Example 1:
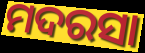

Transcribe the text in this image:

ମଦରସା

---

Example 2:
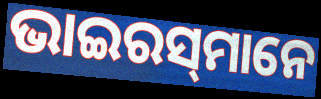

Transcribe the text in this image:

ଭାଇରସ୍‌ମାନେ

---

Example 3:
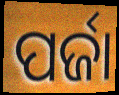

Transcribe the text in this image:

ପର୍ଜା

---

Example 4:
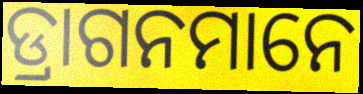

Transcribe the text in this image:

ଡ୍ରାଗନମାନେ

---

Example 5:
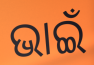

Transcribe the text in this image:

ଭାଇଁ